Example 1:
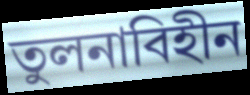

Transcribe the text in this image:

তুলনাবিহীন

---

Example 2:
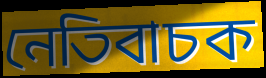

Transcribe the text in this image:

নেতিবাচক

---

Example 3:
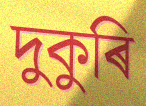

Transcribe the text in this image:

দুকুৰি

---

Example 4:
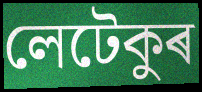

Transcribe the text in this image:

লেটেকুৰ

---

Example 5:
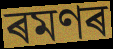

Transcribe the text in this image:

ৰমণৰ